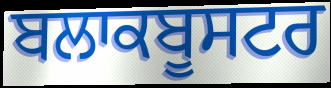
ਬਲਾਕਬੂਸਟਰ